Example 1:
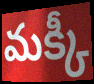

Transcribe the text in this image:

మక్కీ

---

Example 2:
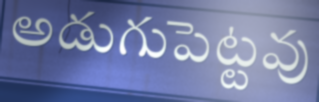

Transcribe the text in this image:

అడుగుపెట్టవు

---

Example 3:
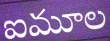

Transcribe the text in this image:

ఐమూల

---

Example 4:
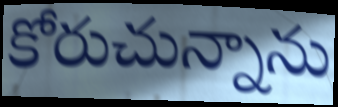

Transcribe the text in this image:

కోరుచున్నాను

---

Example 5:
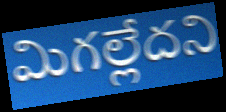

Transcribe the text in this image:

మిగల్లేదని